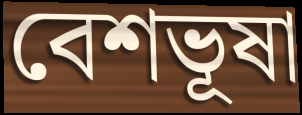
বেশভূষা